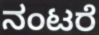
ನಂಟರೆ